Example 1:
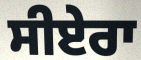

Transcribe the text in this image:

ਸੀਏਰਾ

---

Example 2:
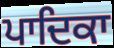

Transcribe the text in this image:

ਪਾਦਿਕਾ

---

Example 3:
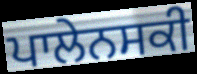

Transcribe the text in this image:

ਪਾਲੇਨਸਕੀ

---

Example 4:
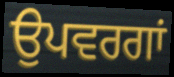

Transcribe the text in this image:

ਉਪਵਰਗਾਂ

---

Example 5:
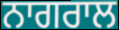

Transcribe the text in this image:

ਨਾਗਰਾਲ